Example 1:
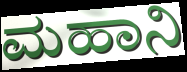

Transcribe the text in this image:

ಮಹಾನಿ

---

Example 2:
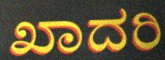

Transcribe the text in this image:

ಖಾದರಿ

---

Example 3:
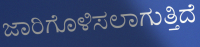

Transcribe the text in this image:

ಜಾರಿಗೊಳಿಸಲಾಗುತ್ತಿದೆ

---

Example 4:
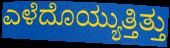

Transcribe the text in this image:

ಎಳೆದೊಯ್ಯುತ್ತಿತ್ತು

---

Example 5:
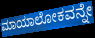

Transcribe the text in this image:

ಮಾಯಾಲೋಕವನ್ನೇ